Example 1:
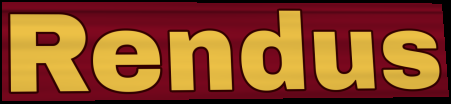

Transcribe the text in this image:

Rendus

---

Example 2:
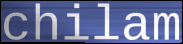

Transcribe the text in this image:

chilam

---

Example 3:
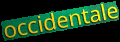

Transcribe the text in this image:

occidentale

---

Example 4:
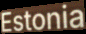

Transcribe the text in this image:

Estonia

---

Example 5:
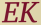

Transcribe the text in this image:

EK